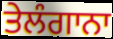
ਤੇਲੰਗਾਨਾ